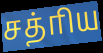
சத்ரிய